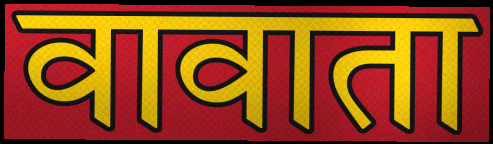
वावाता